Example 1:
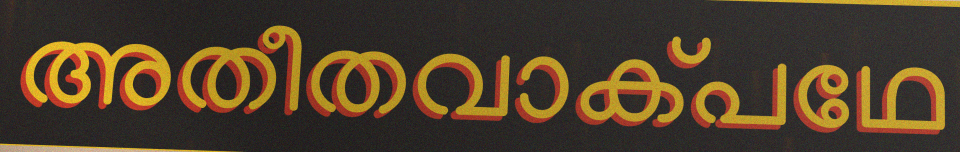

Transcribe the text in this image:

അതീതവാക്പഥേ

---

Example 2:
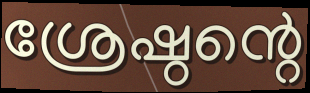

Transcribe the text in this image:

ശ്രേഷ്ഠന്റെ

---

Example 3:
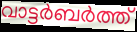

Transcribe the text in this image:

വാട്ടർബർത്ത്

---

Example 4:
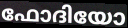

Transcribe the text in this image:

ഫോദിയോ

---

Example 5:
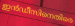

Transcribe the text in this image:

ഇൻഡീസിനെതിരെ